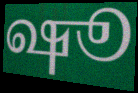
ஷூ